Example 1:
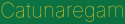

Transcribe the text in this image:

Catunaregam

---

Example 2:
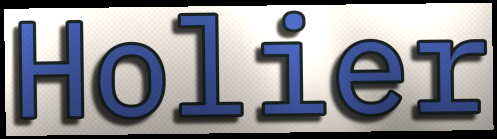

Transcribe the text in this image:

Holier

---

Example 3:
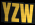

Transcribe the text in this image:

YZW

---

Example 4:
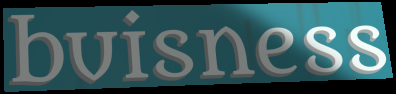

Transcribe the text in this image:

buisness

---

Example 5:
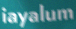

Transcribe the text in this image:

iayalum